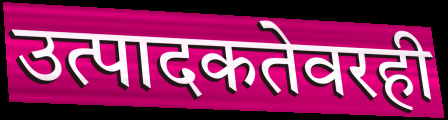
उत्पादकतेवरही